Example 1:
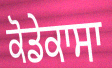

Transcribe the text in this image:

ਕੋਡੇਕਾਸਾ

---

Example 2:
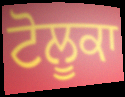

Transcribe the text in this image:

ਟੋਲੂਕਾ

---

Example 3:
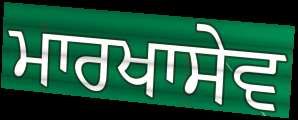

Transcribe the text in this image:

ਮਾਰਖਾਸੇਵ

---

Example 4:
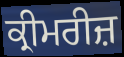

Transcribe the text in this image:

ਕ੍ਰੀਮਰੀਜ਼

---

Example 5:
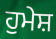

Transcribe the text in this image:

ਹੁਮੇਸ਼